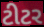
ટીટર